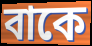
বাকে